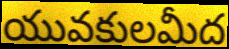
యువకులమీద